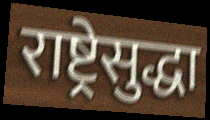
राष्ट्रेसुद्धा